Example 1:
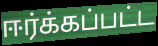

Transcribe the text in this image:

ஈர்க்கப்பட்ட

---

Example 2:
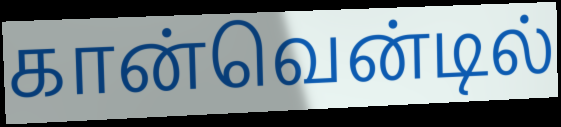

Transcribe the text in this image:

கான்வென்டில்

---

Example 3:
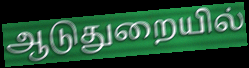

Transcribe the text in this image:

ஆடுதுறையில்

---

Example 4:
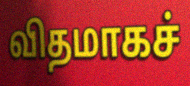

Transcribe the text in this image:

விதமாகச்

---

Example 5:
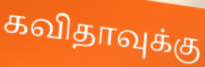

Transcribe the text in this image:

கவிதாவுக்கு